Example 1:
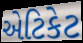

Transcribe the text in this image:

એટિકેટ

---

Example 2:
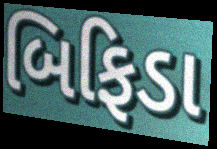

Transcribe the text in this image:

બિફિડા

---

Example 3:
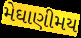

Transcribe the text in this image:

મેઘાણીમય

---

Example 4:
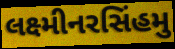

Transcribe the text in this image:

લક્ષ્મીનરસિંહમુ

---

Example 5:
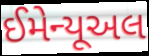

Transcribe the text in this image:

ઈમેન્યૂઅલ